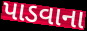
પાડવાના